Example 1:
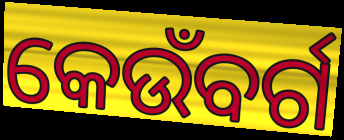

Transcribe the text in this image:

କେଉଁବର୍ଗ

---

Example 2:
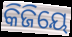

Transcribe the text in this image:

କିଜିୟେ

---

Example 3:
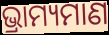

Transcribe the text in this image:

ଭ୍ରାମ୍ୟମାଣ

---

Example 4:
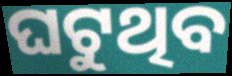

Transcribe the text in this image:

ଘଟୁଥିବ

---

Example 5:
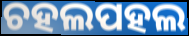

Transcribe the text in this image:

ଚହଲପହଲ